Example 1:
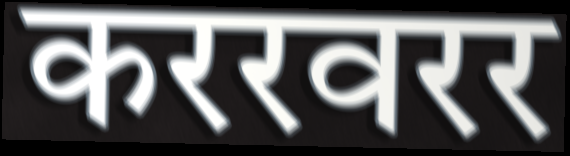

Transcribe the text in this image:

कररवरर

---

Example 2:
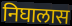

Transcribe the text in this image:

निघालास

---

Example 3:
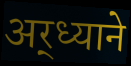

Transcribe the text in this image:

अर्ध्याने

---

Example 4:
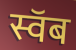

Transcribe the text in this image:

स्वॅब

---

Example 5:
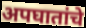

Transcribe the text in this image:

अपघातांचे